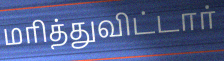
மரித்துவிட்டார்